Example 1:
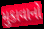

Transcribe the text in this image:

મુકાવાનો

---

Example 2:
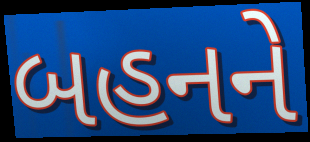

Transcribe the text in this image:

બહનને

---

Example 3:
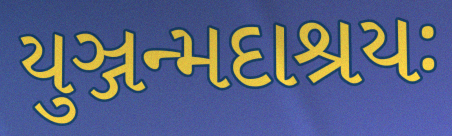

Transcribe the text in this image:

યુઞ્જન્મદાશ્રયઃ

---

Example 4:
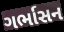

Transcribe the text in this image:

ગર્ભાસન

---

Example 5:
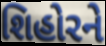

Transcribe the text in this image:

શિહોરને